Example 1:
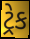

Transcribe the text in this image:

ટ્રેક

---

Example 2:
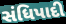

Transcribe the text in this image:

સંધિપાદી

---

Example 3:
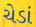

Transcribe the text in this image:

ચેડાં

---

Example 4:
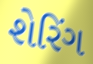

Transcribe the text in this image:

શેરિંગ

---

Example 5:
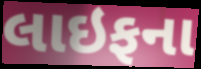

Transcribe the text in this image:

લાઇફના